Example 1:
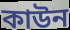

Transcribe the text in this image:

কাউন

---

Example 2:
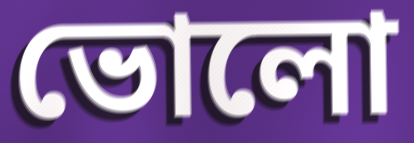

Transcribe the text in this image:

ভোলো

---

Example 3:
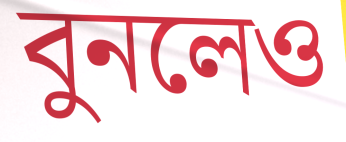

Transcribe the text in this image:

বুনলেও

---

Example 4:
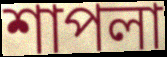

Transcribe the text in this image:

শাপলা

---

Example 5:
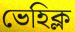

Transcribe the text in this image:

ভেহিক্ল